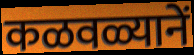
कळवळ्यानें